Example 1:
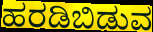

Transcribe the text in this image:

ಹರಡಿಬಿಡುವ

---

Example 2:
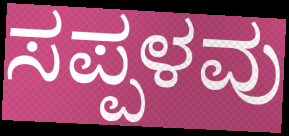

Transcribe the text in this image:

ಸಪ್ಪಳವು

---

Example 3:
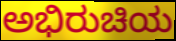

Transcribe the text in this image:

ಅಭಿರುಚಿಯ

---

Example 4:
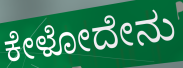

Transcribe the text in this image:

ಕೇಳೋದೇನು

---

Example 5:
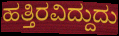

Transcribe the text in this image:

ಹತ್ತಿರವಿದ್ದುದು